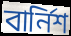
বার্নিশ